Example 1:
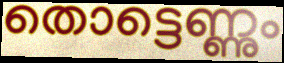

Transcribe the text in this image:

തൊട്ടെണ്ണും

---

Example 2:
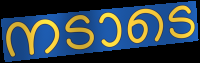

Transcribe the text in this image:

നടാടെ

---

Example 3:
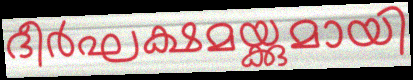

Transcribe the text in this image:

ദീർഘക്ഷമയ്ക്കുമായി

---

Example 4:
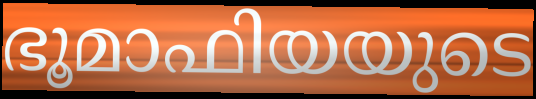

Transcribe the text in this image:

ഭൂമാഫിയയുടെ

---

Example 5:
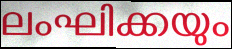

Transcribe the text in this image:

ലംഘിക്കയും